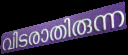
വിടരാതിരുന്ന